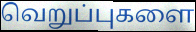
வெறுப்புகளை